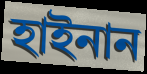
হাইনান